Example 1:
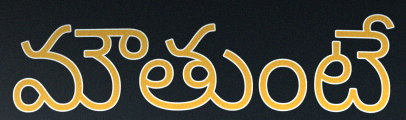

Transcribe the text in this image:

మౌతుంటే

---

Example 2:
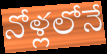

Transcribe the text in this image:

నోళ్లలోనే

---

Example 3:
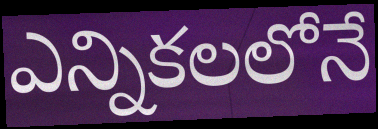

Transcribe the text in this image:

ఎన్నికలలోనే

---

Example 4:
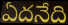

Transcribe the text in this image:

ఏదనేది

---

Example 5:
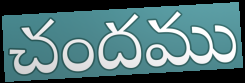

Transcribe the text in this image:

చందము